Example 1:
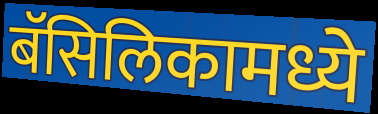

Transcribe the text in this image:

बॅसिलिकामध्ये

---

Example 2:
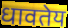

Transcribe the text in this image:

धावतेय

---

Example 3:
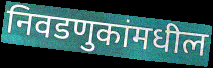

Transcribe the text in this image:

निवडणुकांमधील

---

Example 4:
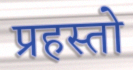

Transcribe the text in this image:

प्रहस्तो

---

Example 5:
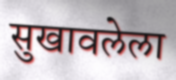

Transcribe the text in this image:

सुखावलेला